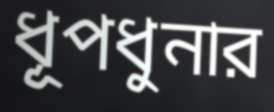
ধূপধুনার